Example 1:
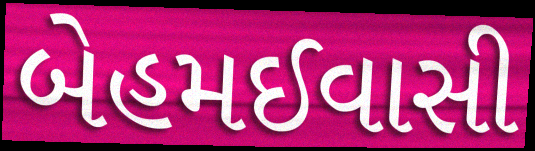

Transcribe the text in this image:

બેહમઈવાસી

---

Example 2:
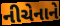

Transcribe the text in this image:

નીચેનાને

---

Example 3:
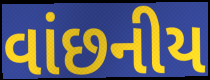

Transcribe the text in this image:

વાંછનીય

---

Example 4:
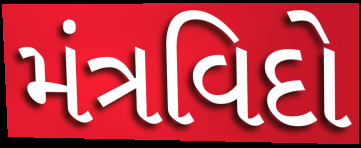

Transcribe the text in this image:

મંત્રવિદો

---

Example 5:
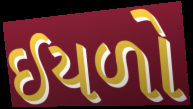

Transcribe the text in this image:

ઈયળો